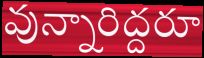
వున్నారిద్దరూ